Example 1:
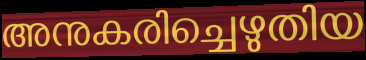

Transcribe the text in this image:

അനുകരിച്ചെഴുതിയ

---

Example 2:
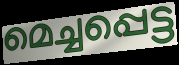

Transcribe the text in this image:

മെച്ചപ്പെട്ട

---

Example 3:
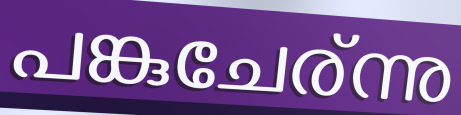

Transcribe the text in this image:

പങ്കുചേര്ന്നു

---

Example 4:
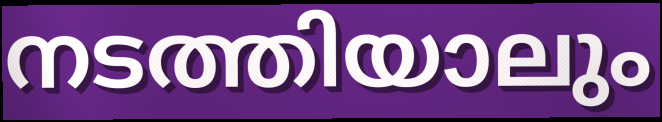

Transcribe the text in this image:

നടത്തിയാലും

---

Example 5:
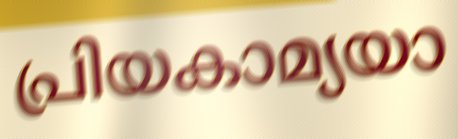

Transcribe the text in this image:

പ്രിയകാമ്യയാ